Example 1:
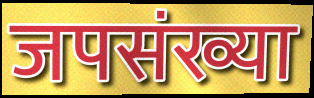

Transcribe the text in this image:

जपसंख्या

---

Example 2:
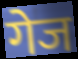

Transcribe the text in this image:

गेज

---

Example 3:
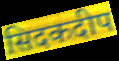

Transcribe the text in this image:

सिदकदीप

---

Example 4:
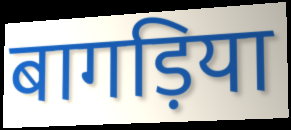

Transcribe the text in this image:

बागड़िया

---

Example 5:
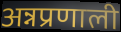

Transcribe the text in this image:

अन्नप्रणाली